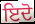
ਇਦੋ